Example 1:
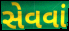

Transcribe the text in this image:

સેવવાં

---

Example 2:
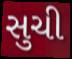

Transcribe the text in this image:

સુચી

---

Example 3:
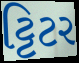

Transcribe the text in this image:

ટ્ટિટર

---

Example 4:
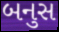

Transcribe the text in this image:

બનુસ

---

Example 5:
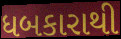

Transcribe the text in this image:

ધબકારાથી